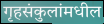
गृहसंकुलांमधील